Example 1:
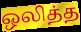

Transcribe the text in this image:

ஒலித்த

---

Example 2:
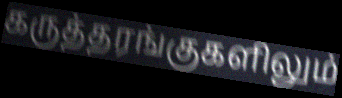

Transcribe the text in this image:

கருத்தரங்குகளிலும்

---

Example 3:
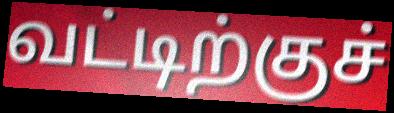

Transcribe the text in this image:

வட்டிற்குச்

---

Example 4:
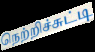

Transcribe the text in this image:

நெற்றிச்சுட்டி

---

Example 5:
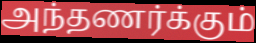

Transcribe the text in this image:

அந்தணர்க்கும்